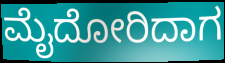
ಮೈದೋರಿದಾಗ